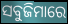
ସବୁଜିମାରେ